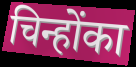
चिन्होंका